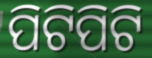
ପିଟିପିଟି